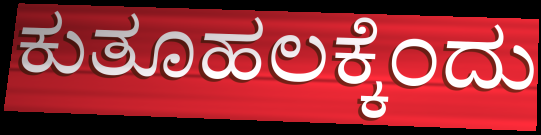
ಕುತೂಹಲಕ್ಕೆಂದು